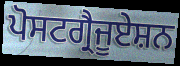
ਪੋਸਟਗ੍ਰੈਜੂਏਸ਼ਨ